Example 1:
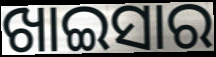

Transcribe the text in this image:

ଖାଇସାର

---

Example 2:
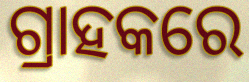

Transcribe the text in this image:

ଗ୍ରାହକରେ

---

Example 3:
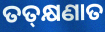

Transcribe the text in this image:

ତତ୍‍କ୍ଷଣାତ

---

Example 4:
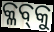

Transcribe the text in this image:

କ୍ଳବ୍‌କୁ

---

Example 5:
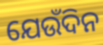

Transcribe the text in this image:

ଯେଉଁଦିନ